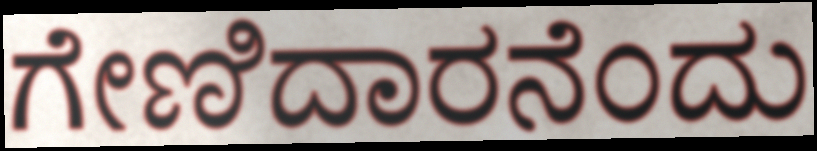
ಗೇಣಿದಾರನೆಂದು